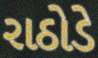
રાઠોડે